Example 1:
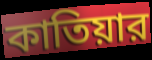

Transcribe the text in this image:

কাতিয়ার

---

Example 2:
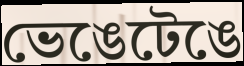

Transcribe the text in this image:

ভেঙেটেঙে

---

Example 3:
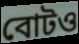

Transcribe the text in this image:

বোটও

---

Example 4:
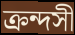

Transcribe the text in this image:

ক্রন্দসী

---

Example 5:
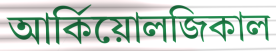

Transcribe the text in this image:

আর্কিয়োলজিকাল